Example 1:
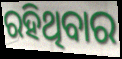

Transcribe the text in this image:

ରହିଥିବାର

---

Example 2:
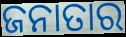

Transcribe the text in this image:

ଜନାତାର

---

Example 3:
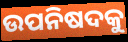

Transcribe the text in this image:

ଉପନିଷଦକୁ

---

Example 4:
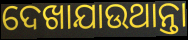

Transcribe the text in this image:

ଦେଖାଯାଉଥାନ୍ତା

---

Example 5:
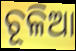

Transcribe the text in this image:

ଚୂଳିଆ